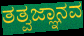
ತತ್ವಜ್ಞಾನವ